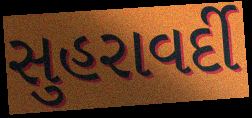
સુહરાવર્દી